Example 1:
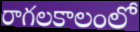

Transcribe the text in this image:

రాగలకాలంలో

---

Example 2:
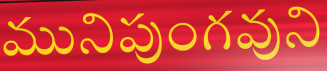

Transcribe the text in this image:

మునిపుంగవుని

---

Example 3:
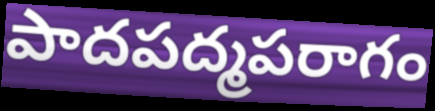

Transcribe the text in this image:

పాదపద్మపరాగం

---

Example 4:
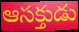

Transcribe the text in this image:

ఆసక్తుడు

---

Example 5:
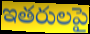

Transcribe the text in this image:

ఇతరులపై